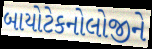
બાયોટેકનોલોજીને